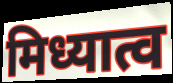
मिध्यात्व